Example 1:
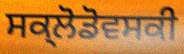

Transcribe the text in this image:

ਸਕ੍ਲੋਡੋਵਸਕੀ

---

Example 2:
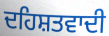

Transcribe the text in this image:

ਦਹਿਸ਼ਤਵਾਦੀ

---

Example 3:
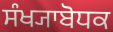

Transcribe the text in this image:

ਸੰਖ੍ਯਾਬੋਧਕ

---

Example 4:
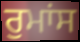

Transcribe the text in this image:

ਰੁਮਾਂਸ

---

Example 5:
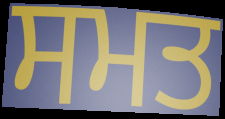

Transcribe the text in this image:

ਸਮਤ